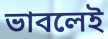
ভাবলেই